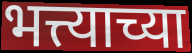
भत्त्याच्या